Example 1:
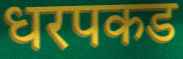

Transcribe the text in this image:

धरपकड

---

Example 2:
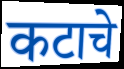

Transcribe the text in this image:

कटाचे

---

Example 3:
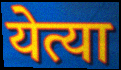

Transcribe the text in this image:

येत्या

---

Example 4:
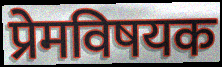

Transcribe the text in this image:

प्रेमविषयक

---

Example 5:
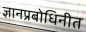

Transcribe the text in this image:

ज्ञानप्रबोधिनीत